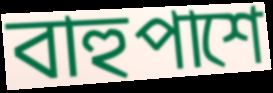
বাহুপাশে